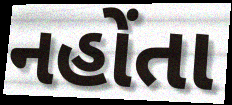
નહોંતા